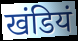
खंडियं